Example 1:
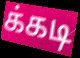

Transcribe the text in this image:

க்கடி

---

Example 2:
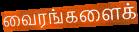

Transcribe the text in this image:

வைரங்களைக்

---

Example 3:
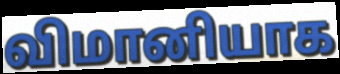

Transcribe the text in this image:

விமானியாக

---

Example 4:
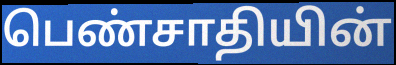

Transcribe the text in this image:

பெண்சாதியின்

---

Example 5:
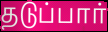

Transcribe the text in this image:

தடுப்பார்